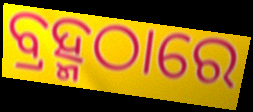
ବ୍ରହ୍ମଠାରେ